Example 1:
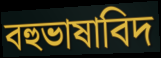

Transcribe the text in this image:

বহুভাষাবিদ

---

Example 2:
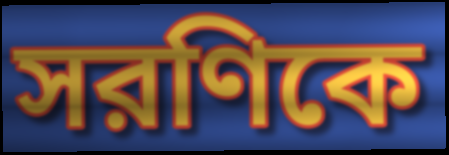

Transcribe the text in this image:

সরণিকে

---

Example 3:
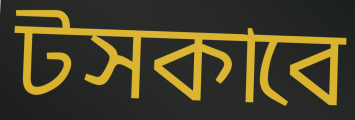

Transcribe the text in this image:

টসকাবে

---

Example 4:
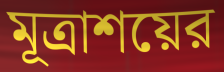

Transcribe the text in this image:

মূত্রাশয়ের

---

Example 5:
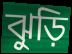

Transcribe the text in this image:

ঝুড়ি